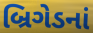
બ્રિગેડનાં